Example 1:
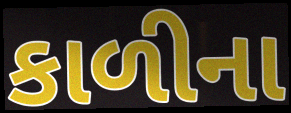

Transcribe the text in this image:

કાળીના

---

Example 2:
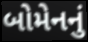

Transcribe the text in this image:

બોમેનનું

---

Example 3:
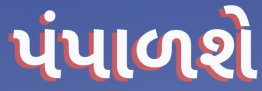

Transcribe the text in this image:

પંપાળશે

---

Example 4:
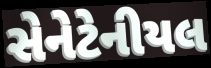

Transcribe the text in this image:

સેનેટેનીયલ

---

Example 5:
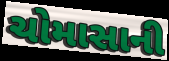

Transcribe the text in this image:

ચોમાસાની